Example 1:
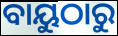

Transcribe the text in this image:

ବାୟୁଠାରୁ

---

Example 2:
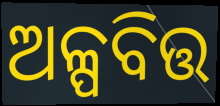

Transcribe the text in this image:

ଅଳ୍ପବିତ୍ତ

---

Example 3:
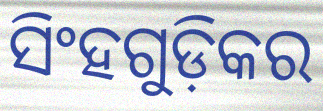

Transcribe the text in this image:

ସିଂହଗୁଡ଼ିକର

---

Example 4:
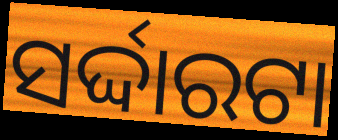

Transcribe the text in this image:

ସର୍ଦ୍ଦାରଟା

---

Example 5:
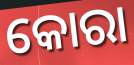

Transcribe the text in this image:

କୋରା